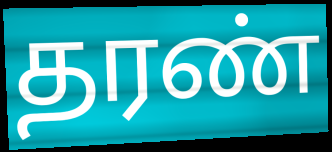
தரண்